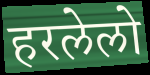
हरलेलो